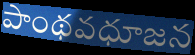
పాంథవధూజన